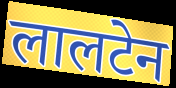
लालटेन